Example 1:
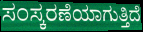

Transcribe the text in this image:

ಸಂಸ್ಕರಣೆಯಾಗುತ್ತಿದೆ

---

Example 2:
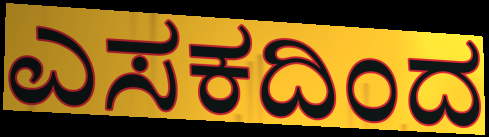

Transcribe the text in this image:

ಎಸಕದಿಂದ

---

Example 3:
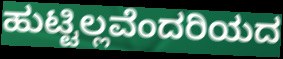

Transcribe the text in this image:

ಹುಟ್ಟಿಲ್ಲವೆಂದರಿಯದ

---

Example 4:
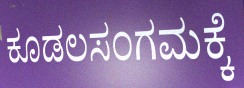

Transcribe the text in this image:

ಕೂಡಲಸಂಗಮಕ್ಕೆ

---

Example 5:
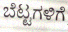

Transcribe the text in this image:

ಬೆಟ್ಟಗಳಿಗೆ